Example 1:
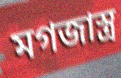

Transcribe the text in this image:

মগজাস্ত্র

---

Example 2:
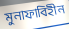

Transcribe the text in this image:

মুনাফাবিহীন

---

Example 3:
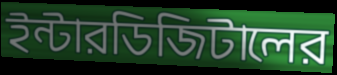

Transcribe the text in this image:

ইন্টারডিজিটালের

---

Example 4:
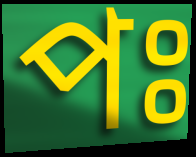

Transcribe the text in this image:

পঃ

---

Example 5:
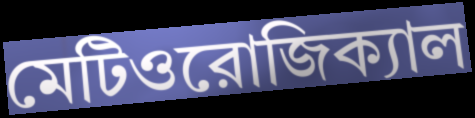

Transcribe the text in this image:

মেটিওরোজিক্যাল